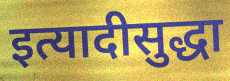
इत्यादीसुद्धा